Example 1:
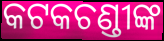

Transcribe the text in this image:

କଟକଚଣ୍ଡୀଙ୍କ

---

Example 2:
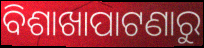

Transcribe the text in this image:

ବିଶାଖାପାଟଣାରୁ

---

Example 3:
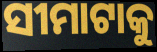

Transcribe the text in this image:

ସୀମାଟାକୁ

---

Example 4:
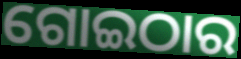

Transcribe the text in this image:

ଗୋଇଠାର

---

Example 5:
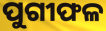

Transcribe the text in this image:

ପୁଗୀଫଳ